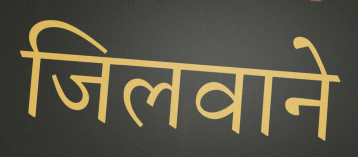
जिलवाने